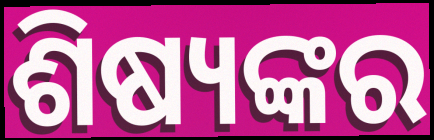
ଶିଷ୍ୟଙ୍କର